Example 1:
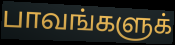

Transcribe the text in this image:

பாவங்களுக்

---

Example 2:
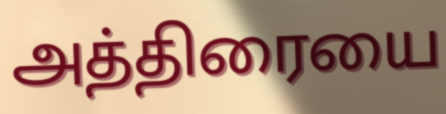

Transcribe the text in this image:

அத்திரையை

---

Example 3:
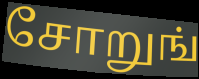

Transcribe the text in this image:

சோறுங்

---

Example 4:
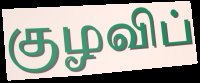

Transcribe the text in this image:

குழவிப்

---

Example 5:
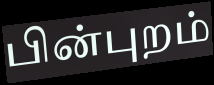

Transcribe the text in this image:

பின்புறம்